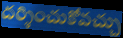
దర్శించుకోవచ్చు